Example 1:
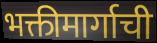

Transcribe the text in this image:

भक्तीमार्गाची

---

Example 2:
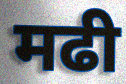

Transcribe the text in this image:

मढी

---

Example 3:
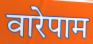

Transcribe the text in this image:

वारेपाम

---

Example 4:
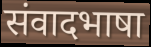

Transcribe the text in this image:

संवादभाषा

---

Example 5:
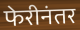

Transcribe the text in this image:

फेरीनंतर